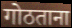
गोठताना